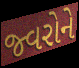
જ્વરોને